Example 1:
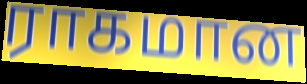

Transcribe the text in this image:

ராகமான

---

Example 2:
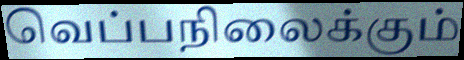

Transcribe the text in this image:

வெப்பநிலைக்கும்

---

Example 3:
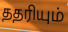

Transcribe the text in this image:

ததரியும்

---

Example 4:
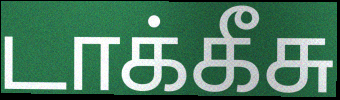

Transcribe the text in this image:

டாக்கீசு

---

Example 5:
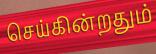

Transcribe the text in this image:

செய்கின்றதும்